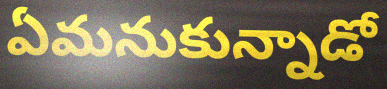
ఏమనుకున్నాడో